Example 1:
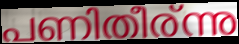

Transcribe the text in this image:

പണിതീര്ന്നു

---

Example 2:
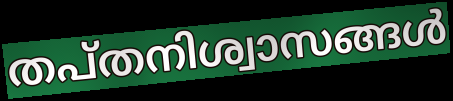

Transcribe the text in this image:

തപ്തനിശ്വാസങ്ങൾ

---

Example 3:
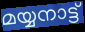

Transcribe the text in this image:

മയ്യനാട്ട്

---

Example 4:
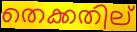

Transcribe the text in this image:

തെക്കതില്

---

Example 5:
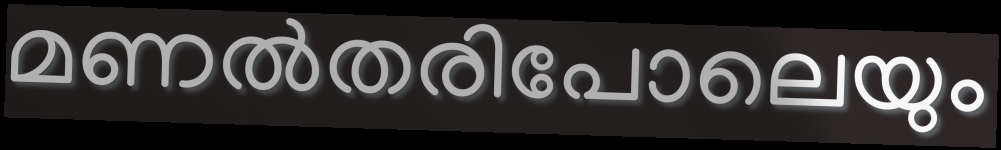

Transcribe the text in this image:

മണൽതരിപോലെയും